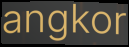
angkor